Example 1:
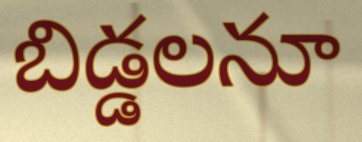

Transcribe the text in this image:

బిడ్డలనూ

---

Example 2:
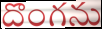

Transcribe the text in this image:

దొంగను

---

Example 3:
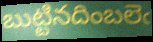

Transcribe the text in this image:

బుట్టినదింబలెఁ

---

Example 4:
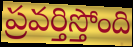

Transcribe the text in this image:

ప్రవర్తిస్తోంది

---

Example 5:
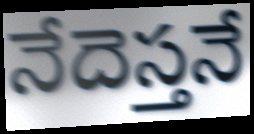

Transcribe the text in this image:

నేదెస్తనే